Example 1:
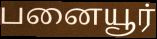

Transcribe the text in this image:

பனையூர்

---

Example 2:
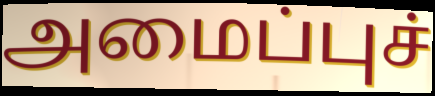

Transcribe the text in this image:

அமைப்புச்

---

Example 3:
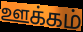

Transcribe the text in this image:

ஊக்கம்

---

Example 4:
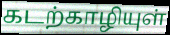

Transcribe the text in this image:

கடற்காழியுள்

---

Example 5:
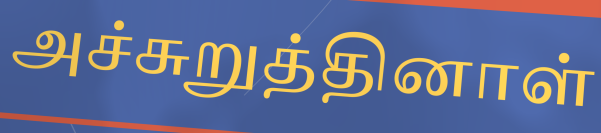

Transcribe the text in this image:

அச்சுறுத்தினாள்